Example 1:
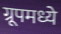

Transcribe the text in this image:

ग्रूपमध्ये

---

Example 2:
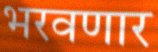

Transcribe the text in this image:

भरवणार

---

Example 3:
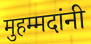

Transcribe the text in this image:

मुहम्मदांनी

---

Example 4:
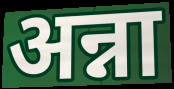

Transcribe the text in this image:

अन्ना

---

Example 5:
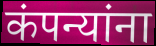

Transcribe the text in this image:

कंपन्यांना